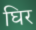
घिर